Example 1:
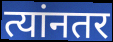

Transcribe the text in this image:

त्यांनतर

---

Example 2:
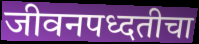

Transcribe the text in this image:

जीवनपध्दतीचा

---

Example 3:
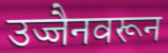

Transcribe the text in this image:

उज्जैनवरून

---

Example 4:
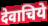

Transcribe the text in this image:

देवाचिये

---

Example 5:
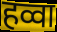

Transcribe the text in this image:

हव्वा